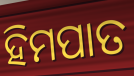
ହିମପାତ